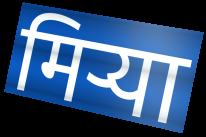
मिऱ्या